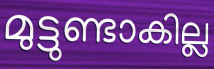
മുട്ടുണ്ടാകില്ല